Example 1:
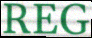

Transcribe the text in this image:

REG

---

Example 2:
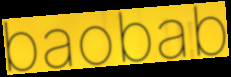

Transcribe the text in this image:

baobab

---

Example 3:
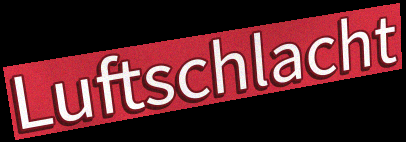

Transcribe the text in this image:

Luftschlacht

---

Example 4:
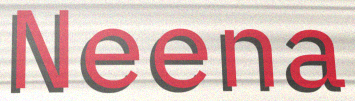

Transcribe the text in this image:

Neena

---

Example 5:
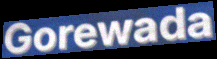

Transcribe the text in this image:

Gorewada